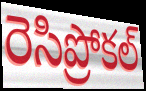
రెసిప్రోకల్